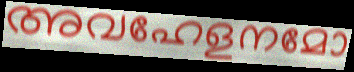
അവഹേളനമോ